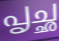
പൃച്ഛ